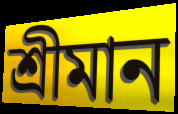
শ্ৰীমান